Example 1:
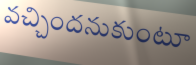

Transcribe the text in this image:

వచ్చిందనుకుంటూ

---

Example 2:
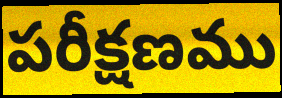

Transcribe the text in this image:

పరీక్షణము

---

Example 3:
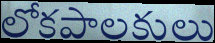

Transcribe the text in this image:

లోకపాలకులు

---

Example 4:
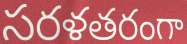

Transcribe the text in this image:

సరళతరంగా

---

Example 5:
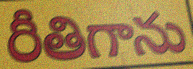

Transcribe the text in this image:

రీతిగాను